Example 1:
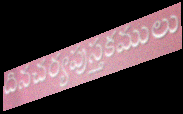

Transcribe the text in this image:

దినచర్యపుస్తకములు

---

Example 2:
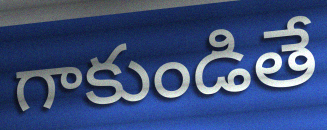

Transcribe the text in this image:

గాకుండితే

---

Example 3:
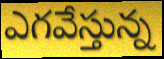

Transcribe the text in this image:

ఎగవేస్తున్న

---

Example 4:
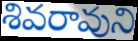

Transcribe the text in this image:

శివరావుని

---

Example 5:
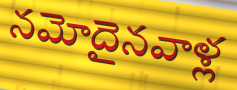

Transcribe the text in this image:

నమోదైనవాళ్ల